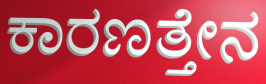
ಕಾರಣತ್ತೇನ